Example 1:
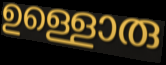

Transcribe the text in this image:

ഉള്ളൊരു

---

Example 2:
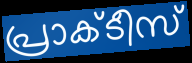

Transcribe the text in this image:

പ്രാക്ടീസ്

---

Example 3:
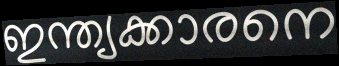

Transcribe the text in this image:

ഇന്ത്യക്കാരനെ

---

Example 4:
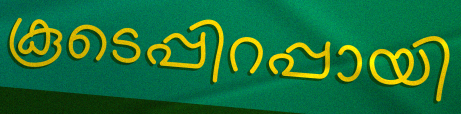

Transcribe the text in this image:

കൂടെപ്പിറപ്പായി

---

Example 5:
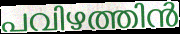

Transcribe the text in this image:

പവിഴത്തിൻ